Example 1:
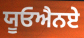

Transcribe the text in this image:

ਯੂਓਐਨਏ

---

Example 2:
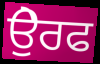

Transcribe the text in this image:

ਉੇਰਫ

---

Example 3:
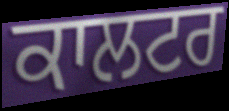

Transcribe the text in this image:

ਕਾਲਟਰ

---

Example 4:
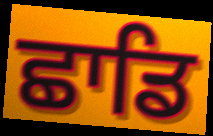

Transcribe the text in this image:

ਛਾਡਿ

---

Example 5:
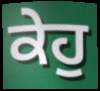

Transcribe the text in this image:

ਕੇਹੁ